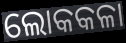
ଲୋକକଳା